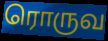
ரொருவ